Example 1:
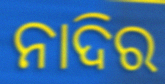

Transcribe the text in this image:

ନାଦିର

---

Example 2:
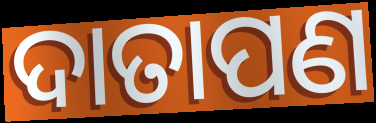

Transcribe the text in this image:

ଦାତାପଣ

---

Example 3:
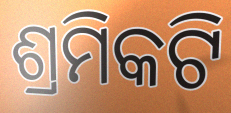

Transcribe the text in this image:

ଶ୍ରମିକଟି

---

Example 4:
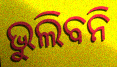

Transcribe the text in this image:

ଭୁଲିବନି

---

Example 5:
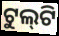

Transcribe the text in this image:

ଟୁଲ୍‌ଟି